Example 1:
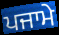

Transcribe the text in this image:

ਪਜਾਮੇ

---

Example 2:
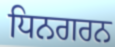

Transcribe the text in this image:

ਧਿਨਗਰਨ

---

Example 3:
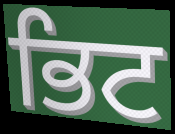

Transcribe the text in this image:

ਭਿਟ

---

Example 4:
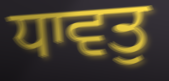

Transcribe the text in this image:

ਧਾਵਤੁ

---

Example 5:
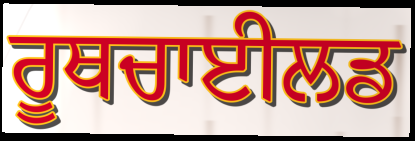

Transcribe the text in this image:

ਰੂਥਚਾਈਲਡ